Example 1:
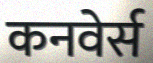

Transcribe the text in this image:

कनवेर्स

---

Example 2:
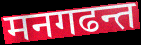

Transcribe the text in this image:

मनगढन्त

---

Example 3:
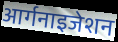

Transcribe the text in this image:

आर्गनाइजेशन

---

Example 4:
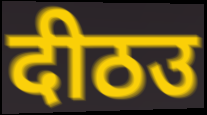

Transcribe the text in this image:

दीठउ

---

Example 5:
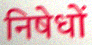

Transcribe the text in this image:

निषेधों